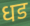
धड